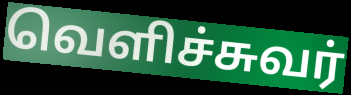
வெளிச்சுவர்